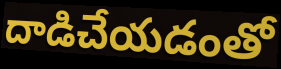
దాడిచేయడంతో